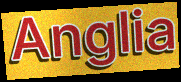
Anglia